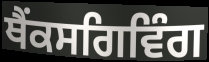
ਥੈਂਕਸਗਿਵਿੰਗ